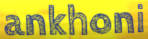
ankhoni